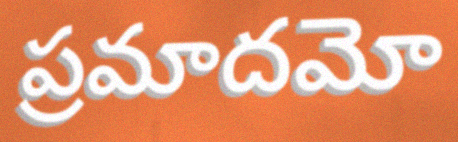
ప్రమాదమో